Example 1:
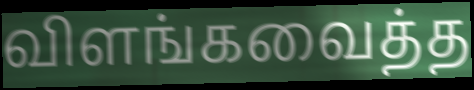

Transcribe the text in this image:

விளங்கவைத்த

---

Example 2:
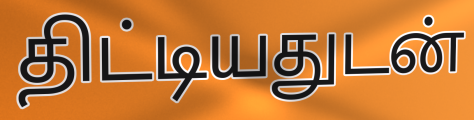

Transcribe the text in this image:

திட்டியதுடன்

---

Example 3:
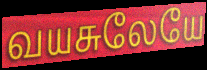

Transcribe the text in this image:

வயசுலேயே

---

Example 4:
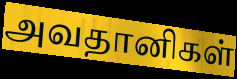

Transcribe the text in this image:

அவதானிகள்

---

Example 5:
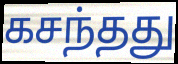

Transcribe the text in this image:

கசந்தது